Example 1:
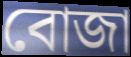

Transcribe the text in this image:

বোজা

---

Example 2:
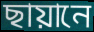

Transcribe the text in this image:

ছায়ানে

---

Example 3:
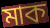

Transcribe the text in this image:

মাক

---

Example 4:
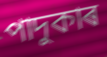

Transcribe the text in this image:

পাদুকাৰ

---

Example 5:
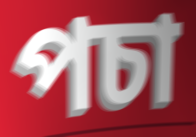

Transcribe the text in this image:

পচা